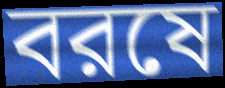
বরষে